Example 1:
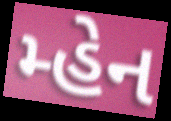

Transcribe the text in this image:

મ્હેન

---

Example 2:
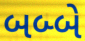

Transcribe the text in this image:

બબ્બે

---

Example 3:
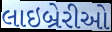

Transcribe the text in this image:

લાઇબ્રેરીઓ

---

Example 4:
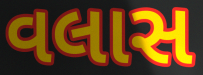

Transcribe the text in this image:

વલાસ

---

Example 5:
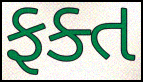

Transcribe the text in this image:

ફક્ત